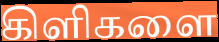
கிளிகளை